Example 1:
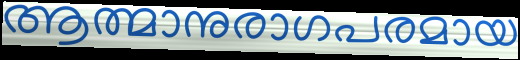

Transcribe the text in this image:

ആത്മാനുരാഗപരമായ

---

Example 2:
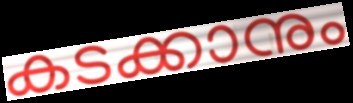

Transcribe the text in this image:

കടക്കാനും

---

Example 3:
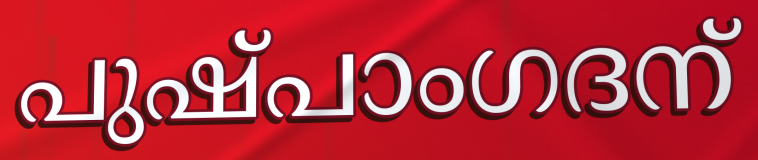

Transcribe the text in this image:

പുഷ്പാംഗദന്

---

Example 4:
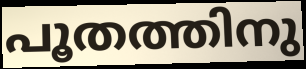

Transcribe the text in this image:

പൂതത്തിനു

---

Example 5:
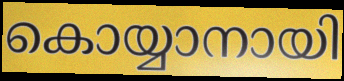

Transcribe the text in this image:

കൊയ്യാനായി